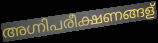
അഗ്നിപരീക്ഷണങ്ങള്